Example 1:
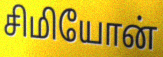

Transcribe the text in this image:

சிமியோன்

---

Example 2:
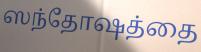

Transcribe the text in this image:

ஸந்தோஷத்தை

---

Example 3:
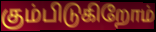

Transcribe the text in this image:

கும்பிடுகிறோம்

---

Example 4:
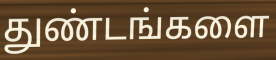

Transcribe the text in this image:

துண்டங்களை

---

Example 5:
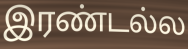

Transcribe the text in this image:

இரண்டல்ல